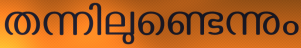
തന്നിലുണ്ടെന്നും